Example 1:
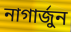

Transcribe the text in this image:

নাগাৰ্জুন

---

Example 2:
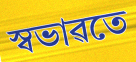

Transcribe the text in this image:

স্বভাৱতে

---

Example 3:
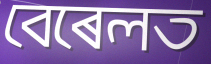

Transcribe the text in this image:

বেৰেলত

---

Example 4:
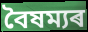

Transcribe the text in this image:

বৈষম্যৰ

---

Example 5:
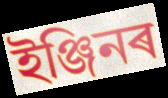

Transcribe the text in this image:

ইঞ্জিনৰ